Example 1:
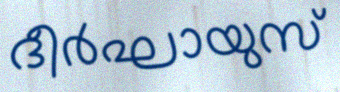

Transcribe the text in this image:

ദീർഘായുസ്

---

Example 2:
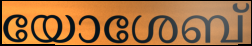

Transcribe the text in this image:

യോശേബ്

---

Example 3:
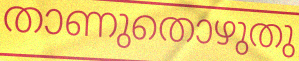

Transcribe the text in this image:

താണുതൊഴുതു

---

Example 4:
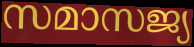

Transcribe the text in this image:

സമാസജ്യ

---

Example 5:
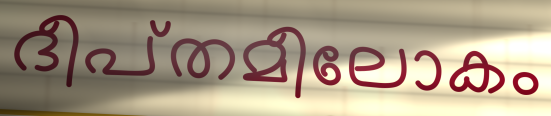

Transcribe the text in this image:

ദീപ്‌തമീലോകം